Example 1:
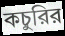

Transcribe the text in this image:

কচুরির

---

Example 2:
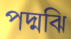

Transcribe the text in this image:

পদ্মঝি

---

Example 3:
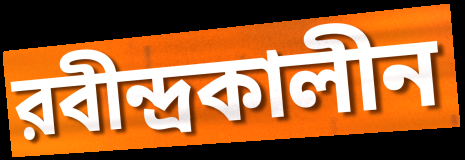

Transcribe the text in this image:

রবীন্দ্রকালীন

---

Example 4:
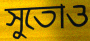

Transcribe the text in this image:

সুতোও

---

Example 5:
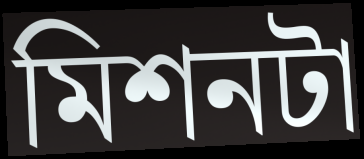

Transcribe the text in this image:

মিশনটা